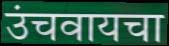
उंचवायचा